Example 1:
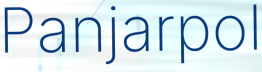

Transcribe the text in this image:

Panjarpol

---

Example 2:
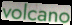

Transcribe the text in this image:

volcano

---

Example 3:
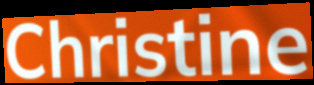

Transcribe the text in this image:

Christine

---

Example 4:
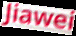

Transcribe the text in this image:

Jiawei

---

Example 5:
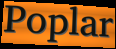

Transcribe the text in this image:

Poplar